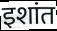
इशांत